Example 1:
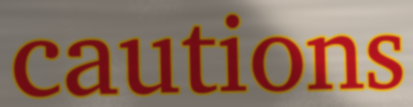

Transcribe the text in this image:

cautions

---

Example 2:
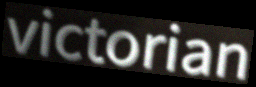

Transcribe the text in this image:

victorian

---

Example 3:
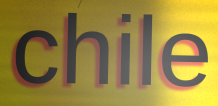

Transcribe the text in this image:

chile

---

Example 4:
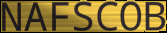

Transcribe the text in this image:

NAFSCOB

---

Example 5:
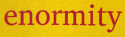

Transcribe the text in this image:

enormity